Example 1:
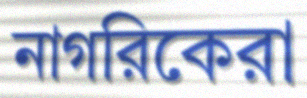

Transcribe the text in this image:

নাগরিকেরা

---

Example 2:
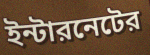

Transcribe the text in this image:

ইন্টারনেটের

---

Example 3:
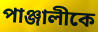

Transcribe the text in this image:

পাঞ্জালীকে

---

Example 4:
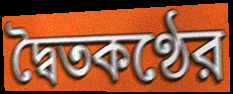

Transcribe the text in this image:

দ্বৈতকণ্ঠের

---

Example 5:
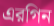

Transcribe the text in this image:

এরগিন